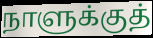
நாளுக்குத்